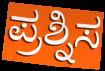
ಪ್ರಶ್ನಿಸ